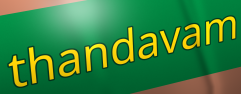
thandavam